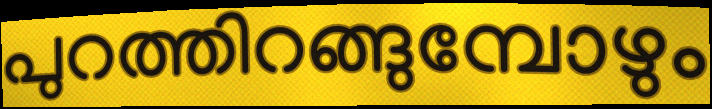
പുറത്തിറങ്ങുമ്പോഴും